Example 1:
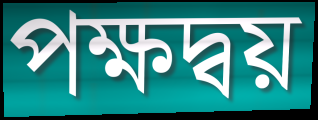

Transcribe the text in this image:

পক্ষদ্বয়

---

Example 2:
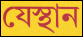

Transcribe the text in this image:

যেস্থান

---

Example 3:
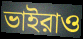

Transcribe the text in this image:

ভাইরাও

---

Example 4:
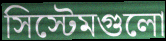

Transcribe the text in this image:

সিস্টেমগুলো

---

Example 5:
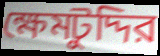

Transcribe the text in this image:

ক্ষেমটুদ্দির